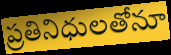
ప్రతినిధులతోనూ